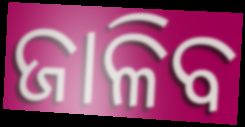
ଜାଳିବ